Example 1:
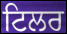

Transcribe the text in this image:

ਟਿਲਰ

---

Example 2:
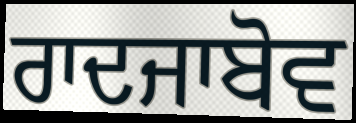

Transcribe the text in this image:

ਰਾਦਜਾਬੋਵ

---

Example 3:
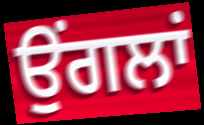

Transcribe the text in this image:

ਉਂਗਲਾਂ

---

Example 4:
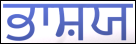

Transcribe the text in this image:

ਭਾਸ਼ਯ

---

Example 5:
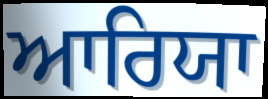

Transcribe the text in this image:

ਆਰਿਯਾ